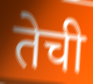
तेची